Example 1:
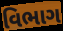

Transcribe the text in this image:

વિભાગ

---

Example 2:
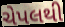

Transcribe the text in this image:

ચેપલથી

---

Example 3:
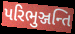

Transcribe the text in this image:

પરિભુઞ્જન્તિ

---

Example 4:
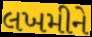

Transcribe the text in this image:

લખમીને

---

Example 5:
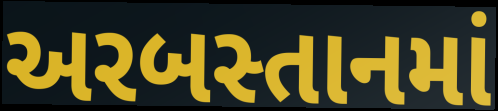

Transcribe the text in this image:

અરબસ્તાનમાં